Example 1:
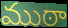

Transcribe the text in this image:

ముఠా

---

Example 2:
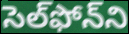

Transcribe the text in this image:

సెల్‌ఫోన్‌ని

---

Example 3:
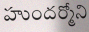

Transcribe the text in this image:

హుందర్మోని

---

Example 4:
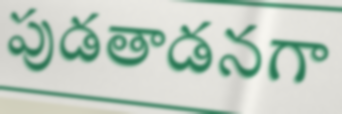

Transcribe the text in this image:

పుడతాడనగా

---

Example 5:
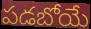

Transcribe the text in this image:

పడబోయే